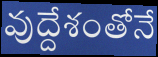
వుద్దేశంతోనే